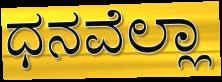
ಧನವೆಲ್ಲಾ